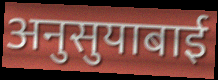
अनुसुयाबाई